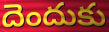
దెందుకు